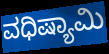
ವಧಿಷ್ಯಾಮಿ